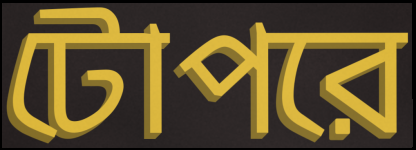
টোপরে